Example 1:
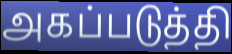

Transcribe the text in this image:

அகப்படுத்தி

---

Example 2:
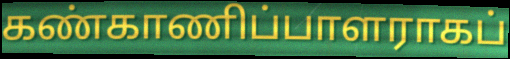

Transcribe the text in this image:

கண்காணிப்பாளராகப்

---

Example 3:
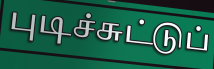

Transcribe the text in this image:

புடிச்சுட்டுப்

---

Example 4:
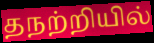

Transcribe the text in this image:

தநற்றியில்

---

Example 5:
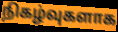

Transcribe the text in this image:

நிகழ்வுகளாக